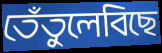
তেঁতুলেবিছে